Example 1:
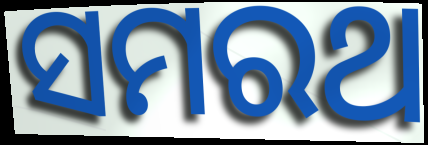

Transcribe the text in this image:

ସମରଥ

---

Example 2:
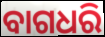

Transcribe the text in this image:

ବାଗଧରି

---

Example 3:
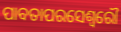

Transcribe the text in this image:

ପାବତାପରସେଶ୍ୱରୌ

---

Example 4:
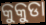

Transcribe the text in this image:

କୁକୁଡା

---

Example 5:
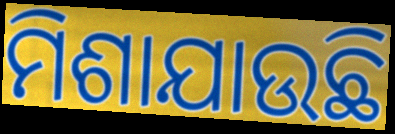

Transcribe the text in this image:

ମିଶାଯାଉଛି